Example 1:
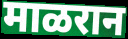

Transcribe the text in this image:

माळरान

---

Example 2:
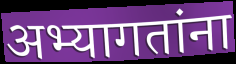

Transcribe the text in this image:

अभ्यागतांना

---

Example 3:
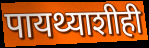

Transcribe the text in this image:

पायथ्याशीही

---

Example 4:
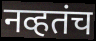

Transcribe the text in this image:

नव्हतंच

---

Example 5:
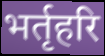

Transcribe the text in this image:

भर्तृहरि